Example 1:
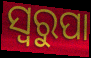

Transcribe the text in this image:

ସ୍ୱରୁପା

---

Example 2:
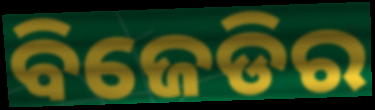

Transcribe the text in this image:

ବିଜେଡିର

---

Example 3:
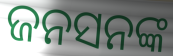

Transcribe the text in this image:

ଜନସନଙ୍କ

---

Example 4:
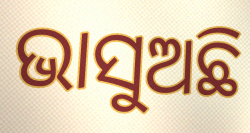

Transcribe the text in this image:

ଭାସୁଅଛି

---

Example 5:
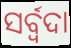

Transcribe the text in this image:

ସର୍ବ୍ବଦା